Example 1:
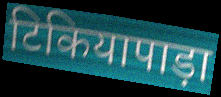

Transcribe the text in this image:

टिकियापाड़ा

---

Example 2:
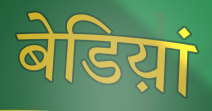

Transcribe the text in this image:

बेडिय़ां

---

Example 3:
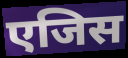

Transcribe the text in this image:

एजिस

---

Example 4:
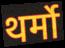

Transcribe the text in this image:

थर्मो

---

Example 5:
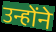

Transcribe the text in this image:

उन्‍होंने